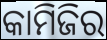
କାମିଜିର